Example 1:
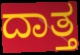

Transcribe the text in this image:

ದಾತ್ತ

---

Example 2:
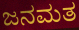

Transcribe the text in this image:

ಜನಮತ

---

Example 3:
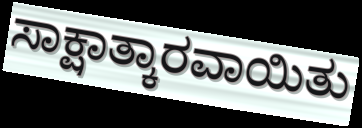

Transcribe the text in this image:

ಸಾಕ್ಷಾತ್ಕಾರವಾಯಿತು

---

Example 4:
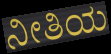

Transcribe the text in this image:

ನೀತಿಯ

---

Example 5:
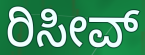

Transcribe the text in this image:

ರಿಸೀವ್